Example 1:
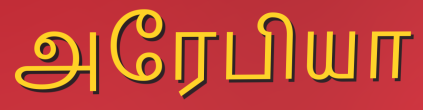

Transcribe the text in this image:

அரேபியா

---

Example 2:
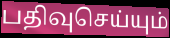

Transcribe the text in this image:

பதிவுசெய்யும்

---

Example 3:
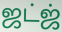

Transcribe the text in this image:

ஜட்ஜ்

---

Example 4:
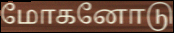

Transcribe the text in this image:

மோகனோடு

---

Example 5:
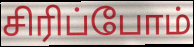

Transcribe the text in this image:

சிரிப்போம்